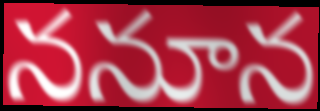
ననూన